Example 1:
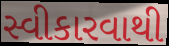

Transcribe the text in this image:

સ્વીકારવાથી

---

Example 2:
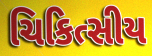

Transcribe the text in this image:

ચિકિત્સીય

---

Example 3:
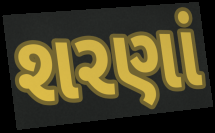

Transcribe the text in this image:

શરણાં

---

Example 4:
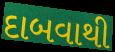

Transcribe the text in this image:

દાબવાથી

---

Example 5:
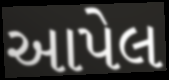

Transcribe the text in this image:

આપેલ